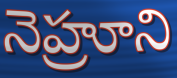
నెహ్రూని